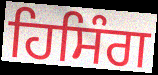
ਹਿਸਿੰਗ